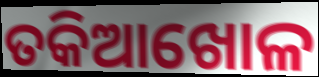
ତକିଆଖୋଳ